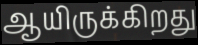
ஆயிருக்கிறது